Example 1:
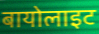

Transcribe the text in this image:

बायोलाइट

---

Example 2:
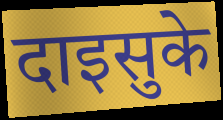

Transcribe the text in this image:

दाइसुके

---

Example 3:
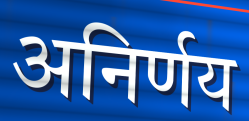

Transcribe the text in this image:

अनिर्णय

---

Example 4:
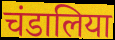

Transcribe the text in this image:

चंडालिया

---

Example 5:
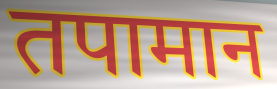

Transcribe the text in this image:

तपामान